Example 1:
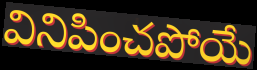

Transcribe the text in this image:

వినిపించపోయే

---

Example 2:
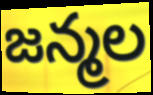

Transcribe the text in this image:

జన్మల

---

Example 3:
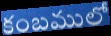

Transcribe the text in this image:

కంబములో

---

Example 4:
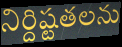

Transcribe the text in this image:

నిర్దిష్టతలను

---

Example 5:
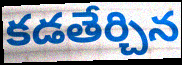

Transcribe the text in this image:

కడతేర్చిన